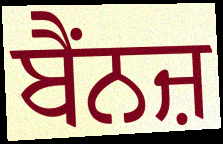
ਬੈਂਨਜ਼